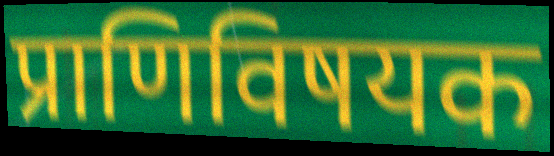
प्राणिविषयक